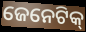
ଜେନେଟିକ୍